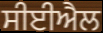
ਸੀਈਐਲ